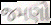
જમણો